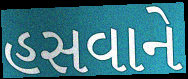
હસવાને